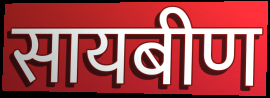
सायबीण